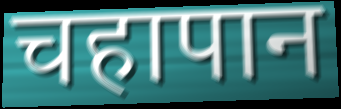
चहापान